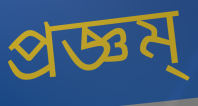
প্রজ্ঞম্